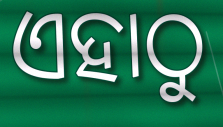
ଏହାଠୁ